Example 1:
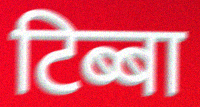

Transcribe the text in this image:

टिब्बा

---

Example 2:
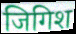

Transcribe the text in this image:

जिगिश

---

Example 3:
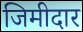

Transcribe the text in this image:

जिमीदार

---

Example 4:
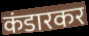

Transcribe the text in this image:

कंडारकर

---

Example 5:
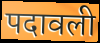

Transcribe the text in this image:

पदावली